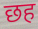
छह